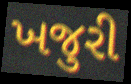
ખજુરી